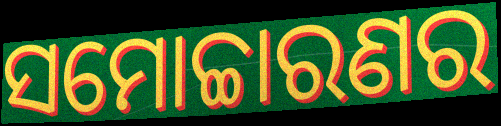
ସମୋଚ୍ଚାରଣର